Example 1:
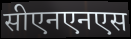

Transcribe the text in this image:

सीएनएनएस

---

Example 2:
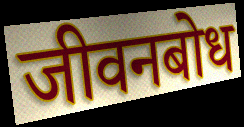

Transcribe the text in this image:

जीवनबोध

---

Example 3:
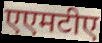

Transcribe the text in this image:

एएमटीए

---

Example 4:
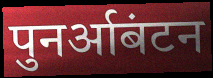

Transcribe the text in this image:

पुनर्आबंटन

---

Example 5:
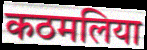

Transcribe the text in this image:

कठमलिया